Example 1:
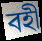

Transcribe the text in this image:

বহী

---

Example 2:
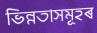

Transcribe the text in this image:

ভিন্নতাসমূহৰ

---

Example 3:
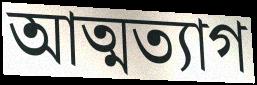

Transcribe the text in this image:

আত্মত্যাগ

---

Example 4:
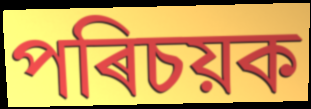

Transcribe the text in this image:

পৰিচয়ক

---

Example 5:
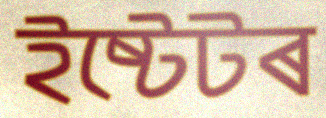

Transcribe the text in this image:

ইষ্টেটৰ